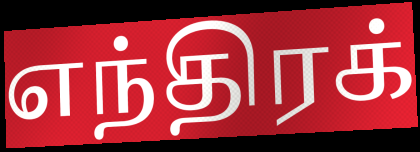
எந்திரக்